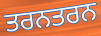
ਤਰਨਤਰਨ